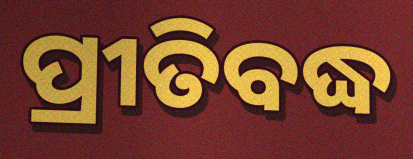
ପ୍ରୀତିବଦ୍ଧ